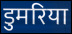
डुमरिया